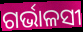
ଗର୍ଭାଳସୀ